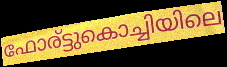
ഫോര്ട്ടുകൊച്ചിയിലെ